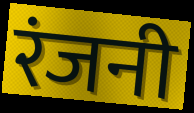
रंजनी